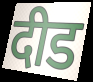
दीड